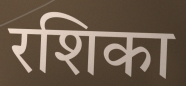
रशिका